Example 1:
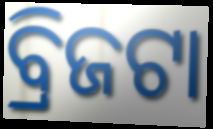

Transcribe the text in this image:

ବ୍ରିଜଟା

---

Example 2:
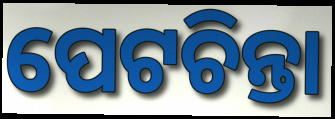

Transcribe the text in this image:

ପେଟଚିନ୍ତା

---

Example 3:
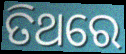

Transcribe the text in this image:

ତିଥରେ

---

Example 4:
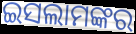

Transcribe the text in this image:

ଇସଲାମଙ୍କର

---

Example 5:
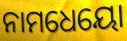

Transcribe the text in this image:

ନାମଧେୟୋ